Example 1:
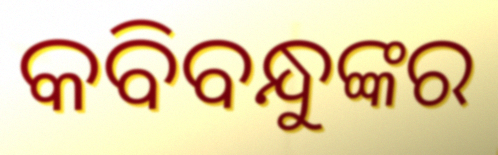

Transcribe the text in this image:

କବିବନ୍ଧୁଙ୍କର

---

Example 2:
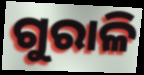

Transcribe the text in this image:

ଗୁରାଳି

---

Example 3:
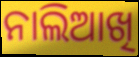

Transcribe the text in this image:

ନାଲିଆଖି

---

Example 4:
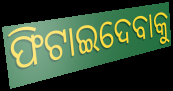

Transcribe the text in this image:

ଫିଟାଇଦେବାକୁ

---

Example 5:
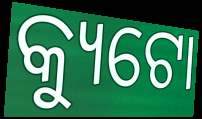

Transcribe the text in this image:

କ୍ୟୁଟୋ